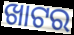
ଖାଟର